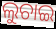
ଲୁଚାଇ